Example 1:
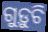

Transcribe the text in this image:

ଗୁଡ଼ୁଚି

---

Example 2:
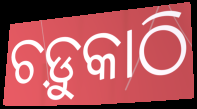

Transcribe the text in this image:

ଚଡ଼ୁକାଠି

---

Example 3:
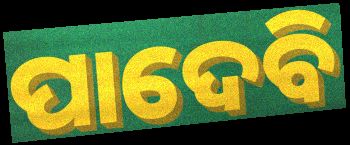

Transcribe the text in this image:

ପାଦେବି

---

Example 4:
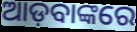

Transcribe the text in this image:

ଆଡ଼ବାଙ୍କରେ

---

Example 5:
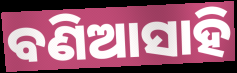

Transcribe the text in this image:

ବଣିଆସାହି